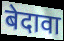
बेदावा